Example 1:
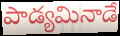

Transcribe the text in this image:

పాడ్యమినాడే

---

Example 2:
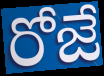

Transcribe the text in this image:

రోజే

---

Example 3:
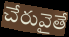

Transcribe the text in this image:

చేరువైతే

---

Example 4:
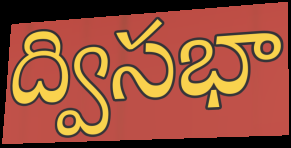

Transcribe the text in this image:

ద్విసభా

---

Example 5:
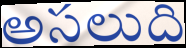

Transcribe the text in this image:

అసలుది